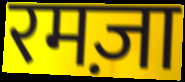
रमज़ा